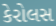
કેરોલસ